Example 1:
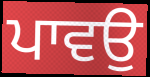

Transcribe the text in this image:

ਪਾਵਉ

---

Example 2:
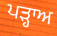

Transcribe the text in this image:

ਪੜ੍ਹਾਅ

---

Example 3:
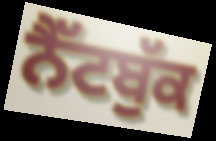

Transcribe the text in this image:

ਨੈੱਟਬੁੱਕ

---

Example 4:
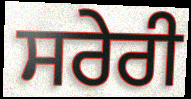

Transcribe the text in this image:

ਸਰੇਰੀ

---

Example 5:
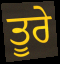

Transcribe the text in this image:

ਤੂਰੇ